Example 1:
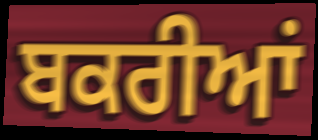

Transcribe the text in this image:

ਬਕਰੀਆਂ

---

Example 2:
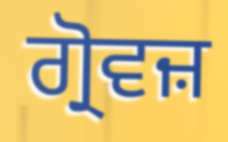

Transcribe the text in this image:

ਗ੍ਰੋਵਜ਼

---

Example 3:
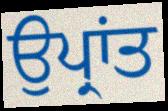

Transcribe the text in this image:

ਉਪ੍ਰਾਂਤ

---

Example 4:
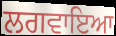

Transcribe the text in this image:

ਲਗਵਾਇਆ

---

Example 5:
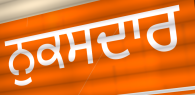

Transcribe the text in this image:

ਨੁਕਸਦਾਰ